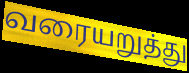
வரையறுத்து